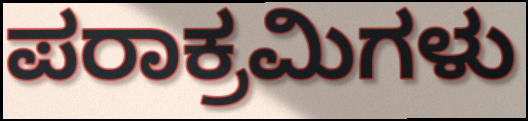
ಪರಾಕ್ರಮಿಗಳು